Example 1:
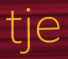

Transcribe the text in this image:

tje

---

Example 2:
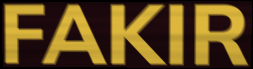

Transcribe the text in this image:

FAKIR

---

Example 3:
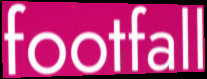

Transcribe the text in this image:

footfall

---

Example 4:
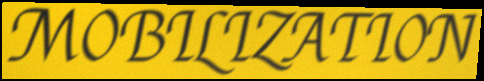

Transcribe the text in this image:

MOBILIZATION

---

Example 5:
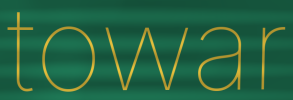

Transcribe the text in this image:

towar